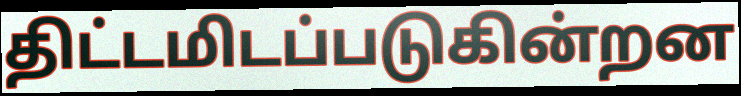
திட்டமிடப்படுகின்றன